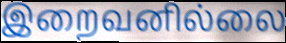
இறைவனில்லை